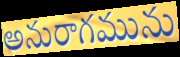
అనురాగమును